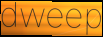
dweep